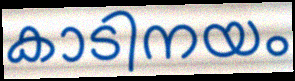
കാടിനയം